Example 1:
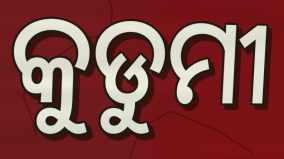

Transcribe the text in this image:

କୁଡୁମୀ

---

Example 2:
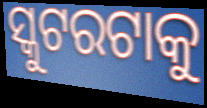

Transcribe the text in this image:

ସ୍କୁଟରଟାକୁ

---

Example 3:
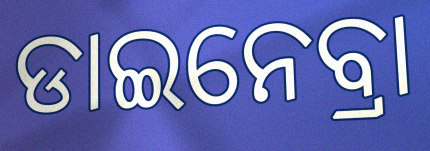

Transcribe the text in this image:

ଡାଇନେବ୍ରା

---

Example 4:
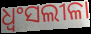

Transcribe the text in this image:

ଧ୍ବଂସଲୀଳା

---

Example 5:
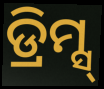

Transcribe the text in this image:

ଡ୍ରିମ୍ସ୍